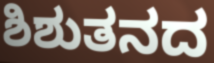
ಶಿಶುತನದ